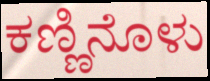
ಕಣ್ಣಿನೊಳು